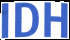
IDH